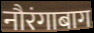
नौरंगाबाग